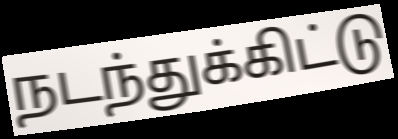
நடந்துக்கிட்டு